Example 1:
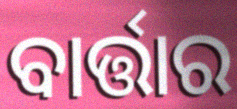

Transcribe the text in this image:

ବାର୍ତ୍ତାର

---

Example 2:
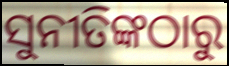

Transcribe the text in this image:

ସୁନୀତିଙ୍କଠାରୁ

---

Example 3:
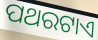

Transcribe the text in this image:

ପଥରଟାଏ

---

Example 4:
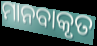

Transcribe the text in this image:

ମାନବାକୃତ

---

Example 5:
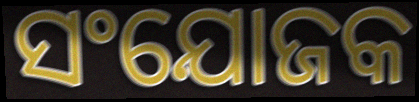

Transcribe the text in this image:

ସଂଯୋଜକ